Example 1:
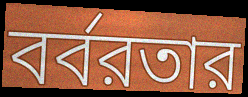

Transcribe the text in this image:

বর্বরতার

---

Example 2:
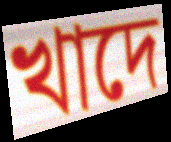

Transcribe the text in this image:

খাদে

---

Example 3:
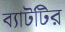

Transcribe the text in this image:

ব্যাটটির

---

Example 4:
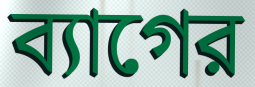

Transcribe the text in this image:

ব্যাগের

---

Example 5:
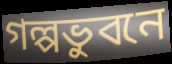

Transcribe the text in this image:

গল্পভুবনে